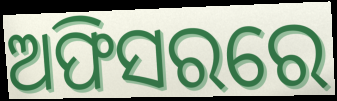
ଅଫିସରରେ